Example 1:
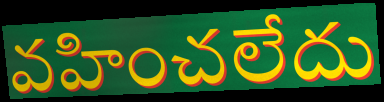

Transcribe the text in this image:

వహించలేదు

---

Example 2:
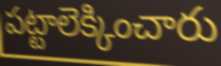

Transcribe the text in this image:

పట్టాలెక్కించారు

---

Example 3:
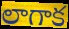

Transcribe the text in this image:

లాగాక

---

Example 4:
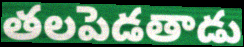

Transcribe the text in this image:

తలపెడతాడు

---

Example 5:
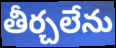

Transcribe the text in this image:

తీర్చలేను